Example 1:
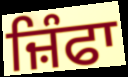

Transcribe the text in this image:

ਜ਼ਿੰਫਾ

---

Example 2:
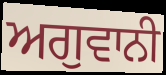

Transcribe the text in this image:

ਅਗੁਵਾਨੀ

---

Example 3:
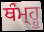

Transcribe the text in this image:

ਥੰਮ੍ਹ੍ਹੁ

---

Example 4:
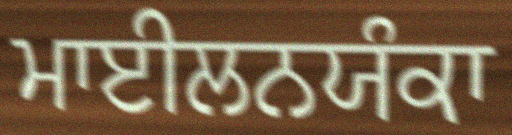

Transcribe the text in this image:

ਮਾਈਲਨਯੰਕਾ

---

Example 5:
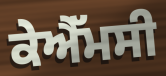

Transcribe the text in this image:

ਕੇਐੱਮਸੀ